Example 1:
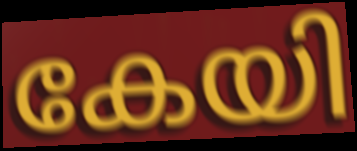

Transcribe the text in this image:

കേയി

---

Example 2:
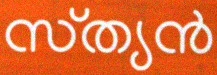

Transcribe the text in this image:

സ്‌ത്യൻ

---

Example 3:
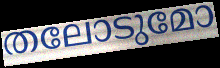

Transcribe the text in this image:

തലോടുമോ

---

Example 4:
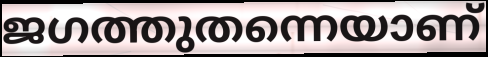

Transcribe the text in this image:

ജഗത്തുതന്നെയാണ്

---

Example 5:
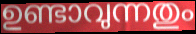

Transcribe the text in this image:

ഉണ്ടാവുന്നതും